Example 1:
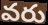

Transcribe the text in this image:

వరు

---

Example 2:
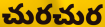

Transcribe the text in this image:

చురచుర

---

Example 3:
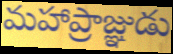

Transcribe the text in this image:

మహాప్రాజ్ఞుడు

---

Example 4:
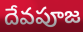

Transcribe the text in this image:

దేవపూజ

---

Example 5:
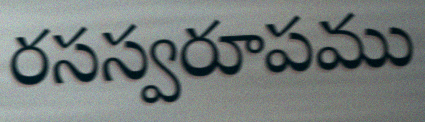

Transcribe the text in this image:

రసస్వరూపము